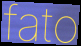
fato